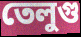
তেলুগু